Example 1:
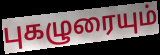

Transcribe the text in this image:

புகழுரையும்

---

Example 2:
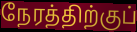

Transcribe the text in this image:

நேரத்திற்குப்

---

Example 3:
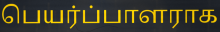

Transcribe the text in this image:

பெயர்ப்பாளராக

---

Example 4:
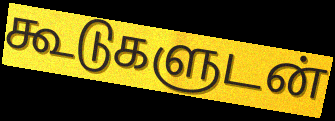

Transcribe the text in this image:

கூடுகளுடன்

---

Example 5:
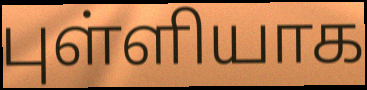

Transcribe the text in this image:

புள்ளியாக